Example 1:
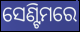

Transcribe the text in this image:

ସେଣ୍ଟିମରେ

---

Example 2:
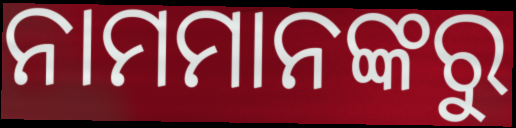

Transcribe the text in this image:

ନାମମାନଙ୍କରୁ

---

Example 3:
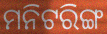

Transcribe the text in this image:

ମନିଟରିଙ୍ଗ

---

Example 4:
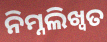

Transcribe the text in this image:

ନିମ୍ନଲିଖ୍ବତ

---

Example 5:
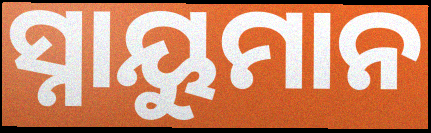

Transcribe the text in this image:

ସ୍ନାୟୁମାନ